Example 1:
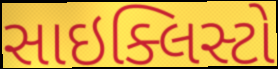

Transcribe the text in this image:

સાઇક્લિસ્ટો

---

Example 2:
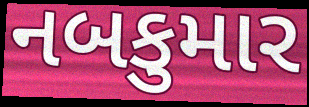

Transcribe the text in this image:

નબકુમાર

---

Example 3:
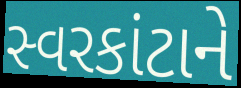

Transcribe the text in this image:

સ્વરકાંટાને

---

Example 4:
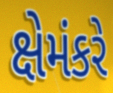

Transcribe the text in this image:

ક્ષેમંકરે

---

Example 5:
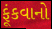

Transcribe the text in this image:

ફૂંકવાનો